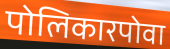
पोलिकारपोवा